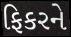
ફિકરને